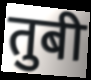
तुबी